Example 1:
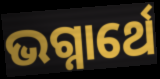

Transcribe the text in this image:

ଭଗ୍ନାର୍ଥେ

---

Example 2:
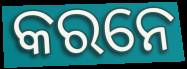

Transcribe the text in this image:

କରନେ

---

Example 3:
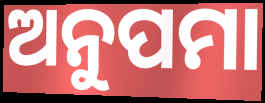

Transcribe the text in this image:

ଅନୁପମା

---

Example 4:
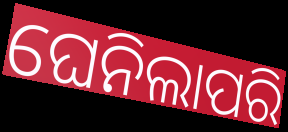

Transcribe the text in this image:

ଘେନିଲାପରି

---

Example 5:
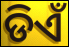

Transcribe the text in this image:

ଡିଏଁ